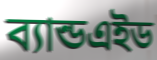
ব্যান্ডএইড